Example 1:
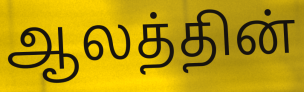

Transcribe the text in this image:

ஆலத்தின்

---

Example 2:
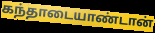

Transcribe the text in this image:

கந்தாடையாண்டான்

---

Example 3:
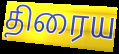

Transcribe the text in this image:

திரைய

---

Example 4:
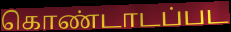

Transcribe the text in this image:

கொண்டாடப்பட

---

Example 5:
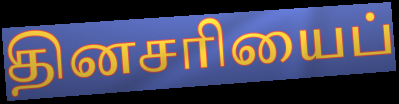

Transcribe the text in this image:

தினசரியைப்